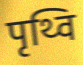
पृथ्वि